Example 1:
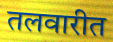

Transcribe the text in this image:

तलवारीत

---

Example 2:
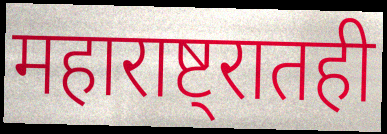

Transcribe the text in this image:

महाराष्ट्रातही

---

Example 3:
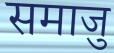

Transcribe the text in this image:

समाजु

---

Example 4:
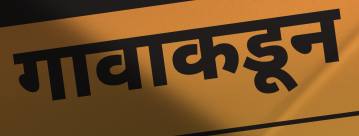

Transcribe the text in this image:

गावाकडून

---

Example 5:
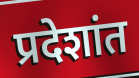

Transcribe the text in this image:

प्रदेशांत